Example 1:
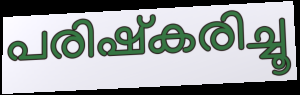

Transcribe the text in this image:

പരിഷ്കരിച്ചൂ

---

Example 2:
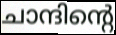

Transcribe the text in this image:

ചാന്ദിന്റെ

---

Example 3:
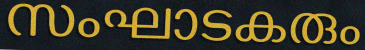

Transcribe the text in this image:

സംഘാടകരും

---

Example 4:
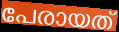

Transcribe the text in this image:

പേരായത്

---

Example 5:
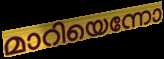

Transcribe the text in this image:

മാറിയെന്നോ